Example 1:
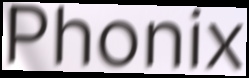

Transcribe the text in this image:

Phonix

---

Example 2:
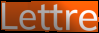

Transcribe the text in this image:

Lettre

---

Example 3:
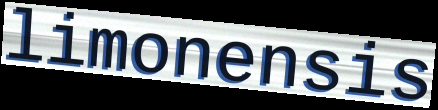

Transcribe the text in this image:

limonensis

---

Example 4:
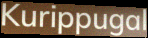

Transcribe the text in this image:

Kurippugal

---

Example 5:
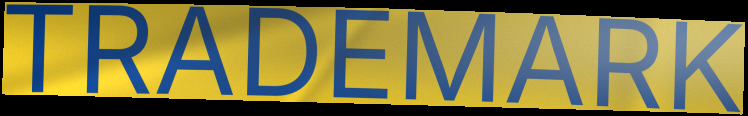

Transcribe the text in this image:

TRADEMARK